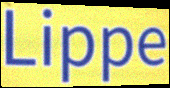
Lippe